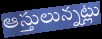
ఆస్తులున్నట్లు